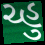
ચ્હુ